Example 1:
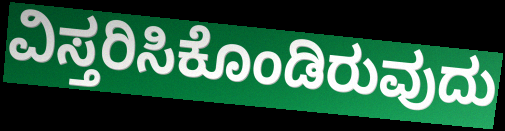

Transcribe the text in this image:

ವಿಸ್ತರಿಸಿಕೊಂಡಿರುವುದು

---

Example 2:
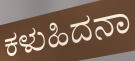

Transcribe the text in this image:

ಕಳುಹಿದನಾ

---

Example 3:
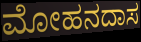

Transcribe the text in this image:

ಮೋಹನದಾಸ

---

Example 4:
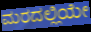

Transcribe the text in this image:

ಮರದಲ್ಲಿಯೇ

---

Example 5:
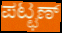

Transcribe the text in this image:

ಪಟ್ಟಣ್